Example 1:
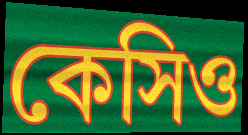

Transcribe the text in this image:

কেসিও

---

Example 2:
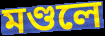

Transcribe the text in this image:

মণ্ডলে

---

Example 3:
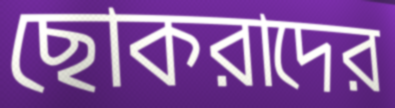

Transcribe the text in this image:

ছোকরাদের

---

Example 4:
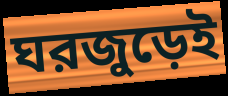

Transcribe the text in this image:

ঘরজুড়েই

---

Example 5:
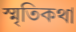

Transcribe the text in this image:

স্মৃতিকথা